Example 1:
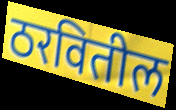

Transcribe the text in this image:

ठरवितील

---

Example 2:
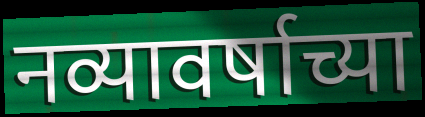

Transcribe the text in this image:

नव्यावर्षाच्या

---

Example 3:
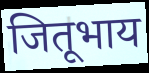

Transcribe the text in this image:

जितूभाय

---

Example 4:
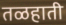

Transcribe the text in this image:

तळहाती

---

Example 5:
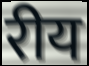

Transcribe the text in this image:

रीय